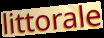
littorale